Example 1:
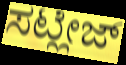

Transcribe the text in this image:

ಸಟ್ಲೇಜ್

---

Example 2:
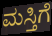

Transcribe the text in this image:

ಮಸ್ತಿಗೆ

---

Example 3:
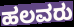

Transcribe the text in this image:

ಹಲವರು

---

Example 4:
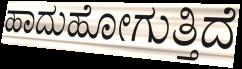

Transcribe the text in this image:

ಹಾದುಹೋಗುತ್ತಿದೆ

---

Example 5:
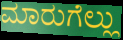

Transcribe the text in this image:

ಮಾರುಗೆಲ್ಲು